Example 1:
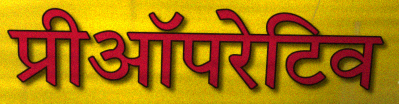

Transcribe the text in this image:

प्रीऑपरेटिव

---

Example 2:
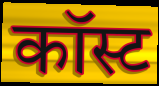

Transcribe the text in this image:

कॉस्ट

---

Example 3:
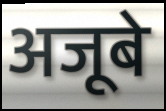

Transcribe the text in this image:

अजूबे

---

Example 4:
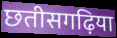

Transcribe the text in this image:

छतीसगढ़िया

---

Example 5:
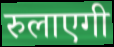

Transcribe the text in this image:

रुलाएगी